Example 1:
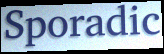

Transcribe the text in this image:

Sporadic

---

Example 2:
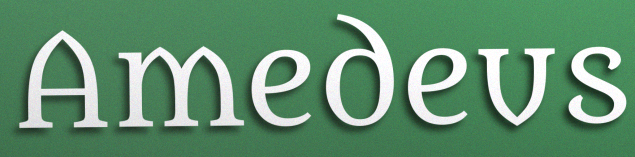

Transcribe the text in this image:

Amedeus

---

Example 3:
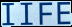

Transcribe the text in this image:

IIFE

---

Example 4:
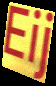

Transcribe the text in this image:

Eij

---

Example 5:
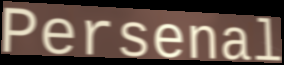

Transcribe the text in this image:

Persenal